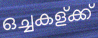
ഒച്ചകള്ക്ക്